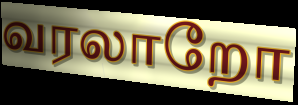
வரலாறோ